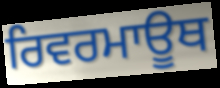
ਰਿਵਰਮਾਊਥ